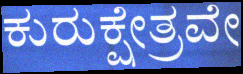
ಕುರುಕ್ಷೇತ್ರವೇ